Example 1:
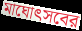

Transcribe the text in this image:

মাঘোৎসবের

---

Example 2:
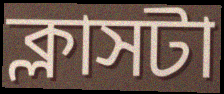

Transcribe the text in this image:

ক্লাসটা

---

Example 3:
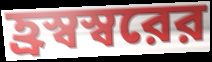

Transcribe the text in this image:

হ্রস্বস্বরের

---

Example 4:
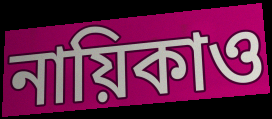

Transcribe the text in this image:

নায়িকাও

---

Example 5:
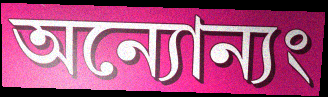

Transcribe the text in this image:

অন্যোন্যং